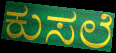
ಕುಸಲೆ